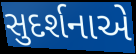
સુદર્શનાએ